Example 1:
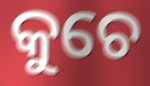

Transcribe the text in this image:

କୁଚେ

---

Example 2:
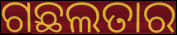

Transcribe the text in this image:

ଗଛଲତାର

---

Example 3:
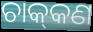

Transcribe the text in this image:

ଚାକ୍‌କଣ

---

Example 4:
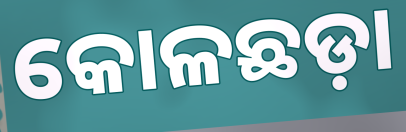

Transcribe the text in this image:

କୋଳଛଡ଼ା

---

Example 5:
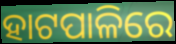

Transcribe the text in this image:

ହାଟପାଳିରେ